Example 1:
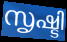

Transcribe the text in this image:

സൃഷ്ടി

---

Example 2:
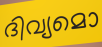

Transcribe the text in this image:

ദിവ്യമൊ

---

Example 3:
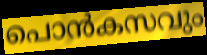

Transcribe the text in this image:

പൊൻകസവും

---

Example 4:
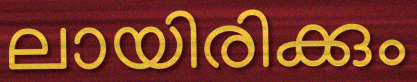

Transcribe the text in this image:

ലായിരിക്കും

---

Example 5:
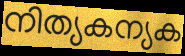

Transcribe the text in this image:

നിത്യകന്യക